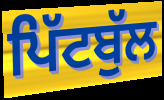
ਪਿੱਟਬੁੱਲ